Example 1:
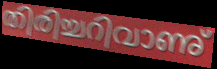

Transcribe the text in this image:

തിരിച്ചറിവാണു്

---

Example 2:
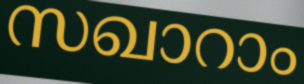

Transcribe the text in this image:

സഖാറാം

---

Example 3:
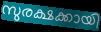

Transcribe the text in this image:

സുരക്ഷക്കായി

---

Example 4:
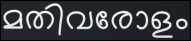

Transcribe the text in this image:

മതിവരോളം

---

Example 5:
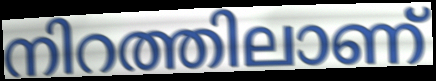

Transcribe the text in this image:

നിറത്തിലാണ്